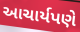
આચાર્યપણે